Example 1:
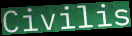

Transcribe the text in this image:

Civilis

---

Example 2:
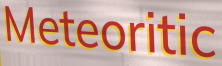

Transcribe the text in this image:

Meteoritic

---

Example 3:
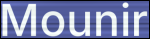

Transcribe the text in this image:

Mounir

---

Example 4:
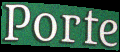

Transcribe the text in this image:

Porte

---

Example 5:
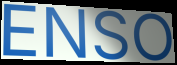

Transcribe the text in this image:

ENSO